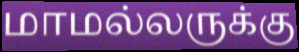
மாமல்லருக்கு